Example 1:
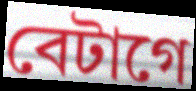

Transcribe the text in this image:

বেটাগে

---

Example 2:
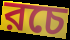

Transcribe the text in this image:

রচে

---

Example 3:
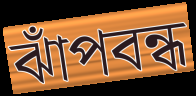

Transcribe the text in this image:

ঝাঁপবন্ধ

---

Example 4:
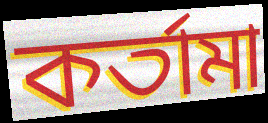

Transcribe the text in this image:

কর্তামা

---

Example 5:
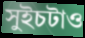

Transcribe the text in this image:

সুইচটাও